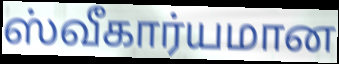
ஸ்வீகார்யமான